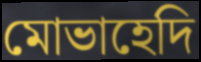
মোভাহেদি